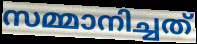
സമ്മാനിച്ചത്